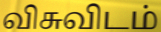
விசுவிடம்